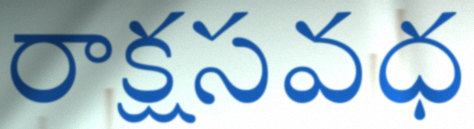
రాక్షసవధ